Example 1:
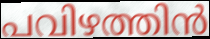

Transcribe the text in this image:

പവിഴത്തിൻ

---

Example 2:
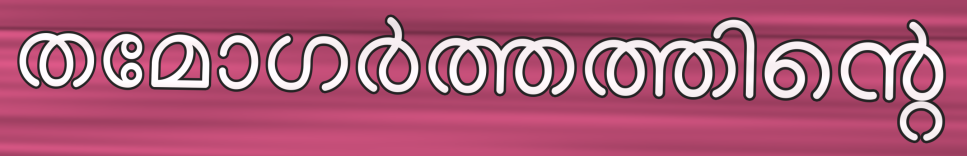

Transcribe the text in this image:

തമോഗർത്തത്തിന്റെ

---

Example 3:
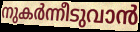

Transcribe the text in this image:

നുകർന്നീടുവാൻ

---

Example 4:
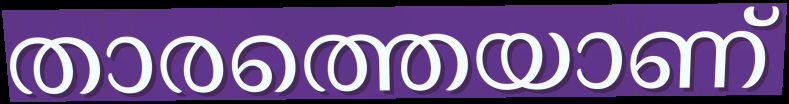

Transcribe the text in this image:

താരത്തെയാണ്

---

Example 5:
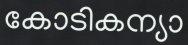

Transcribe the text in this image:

കോടികന്യാ